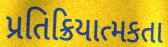
પ્રતિક્રિયાત્મકતા